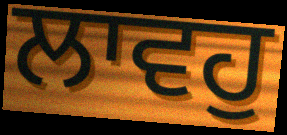
ਲਾਵਹੁ